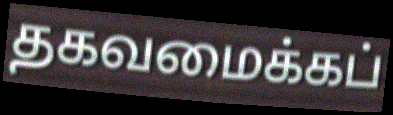
தகவமைக்கப்